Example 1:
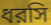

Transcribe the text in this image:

ধরসি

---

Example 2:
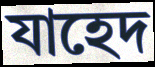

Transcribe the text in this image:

যাহেদ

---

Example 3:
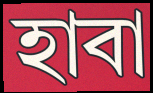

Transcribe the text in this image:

হাবা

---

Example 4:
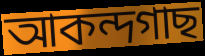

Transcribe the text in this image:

আকন্দগাছ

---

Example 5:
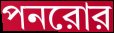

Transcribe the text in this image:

পনরোর